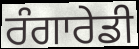
ਰੰਗਾਰੇਡੀ